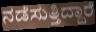
ನಡೆಸುತ್ತಿದ್ದಾರೆ